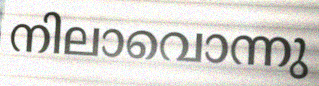
നിലാവൊന്നു